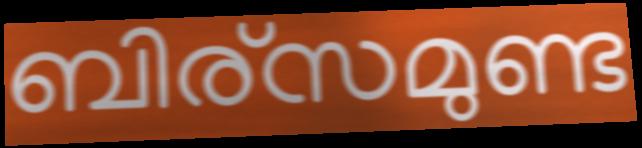
ബിര്സമുണ്ട